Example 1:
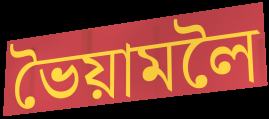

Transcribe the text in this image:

ভৈয়ামলৈ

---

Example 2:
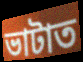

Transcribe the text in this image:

ভাটাত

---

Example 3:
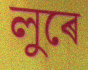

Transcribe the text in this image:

লুৰে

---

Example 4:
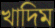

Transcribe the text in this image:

খাদিম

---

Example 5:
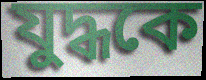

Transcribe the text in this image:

যুদ্ধকে